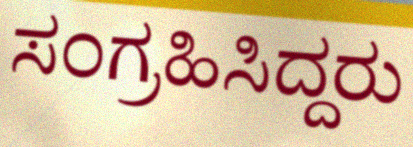
ಸಂಗ್ರಹಿಸಿದ್ದರು